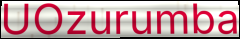
UOzurumba